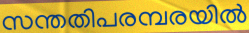
സന്തതിപരമ്പരയിൽ